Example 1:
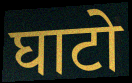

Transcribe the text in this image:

घाटो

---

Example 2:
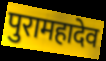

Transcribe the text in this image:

पुरामहादेव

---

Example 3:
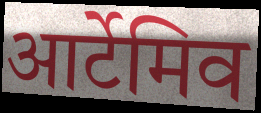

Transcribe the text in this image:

आर्टेमिव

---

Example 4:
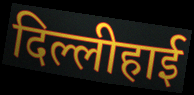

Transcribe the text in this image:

दिल्लीहाई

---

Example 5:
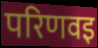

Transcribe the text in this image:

परिणवइ